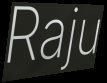
Raju